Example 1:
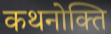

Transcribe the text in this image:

कथनोक्ति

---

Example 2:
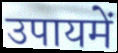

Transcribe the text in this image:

उपायमें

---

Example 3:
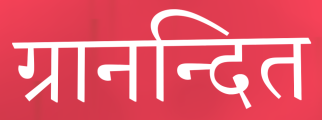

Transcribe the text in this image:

ग्रानन्दित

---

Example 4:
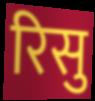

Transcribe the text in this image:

रिसु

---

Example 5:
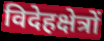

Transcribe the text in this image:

विदेहक्षेत्रों